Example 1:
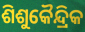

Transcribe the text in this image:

ଶିଶୁକୈନ୍ଦ୍ରିକ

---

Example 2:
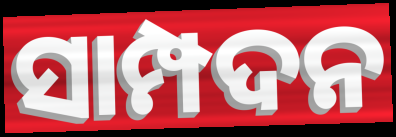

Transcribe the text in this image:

ସାମ୍ପଦନ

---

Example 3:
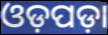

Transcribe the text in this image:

ଓଡ଼ପଡ଼ା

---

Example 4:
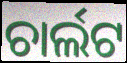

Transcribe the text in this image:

ଚାର୍ଲଟ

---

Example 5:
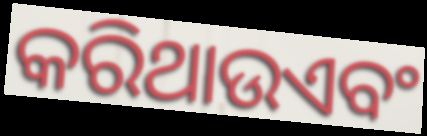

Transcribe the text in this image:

କରିଥାଉଏବଂ